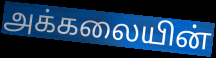
அக்கலையின்